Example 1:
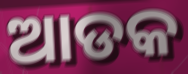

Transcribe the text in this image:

ଆଡକ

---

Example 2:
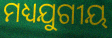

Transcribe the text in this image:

ମଧ୍ଯଯୁଗୀୟ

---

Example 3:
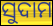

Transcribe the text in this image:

ସୁଦାମ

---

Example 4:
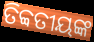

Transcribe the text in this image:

ତିବ୍ବତୀୟଙ୍କ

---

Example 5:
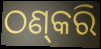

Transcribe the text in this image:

ଠଣ୍‌କରି